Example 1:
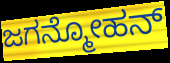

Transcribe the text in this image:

ಜಗನ್ಮೋಹನ್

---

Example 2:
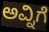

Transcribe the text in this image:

ಅವ್ನಿಗೆ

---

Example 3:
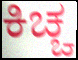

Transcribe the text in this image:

ಕಿಚ್ಚ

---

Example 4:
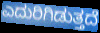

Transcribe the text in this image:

ಎದುರಿಗಿಡುತ್ತದೆ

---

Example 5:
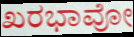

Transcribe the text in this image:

ಖರಭಾವೋ